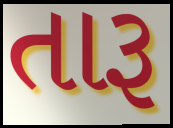
તારૂ